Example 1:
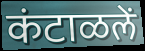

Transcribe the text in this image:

कंटाळलें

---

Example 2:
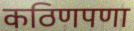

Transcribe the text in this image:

कठिणपणा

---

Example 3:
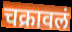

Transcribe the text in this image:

चक्रावलं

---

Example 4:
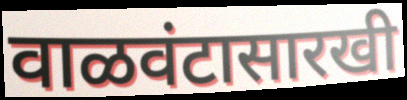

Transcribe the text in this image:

वाळवंटासारखी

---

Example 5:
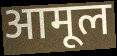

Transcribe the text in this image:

आमूल